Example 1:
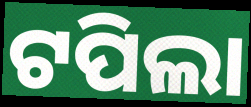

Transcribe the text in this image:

ଟପିଲା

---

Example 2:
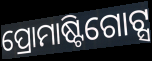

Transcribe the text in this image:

ପ୍ରୋମାଷ୍ଟିଗୋଟ୍ସ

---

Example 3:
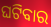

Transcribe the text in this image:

ଘଟିବାର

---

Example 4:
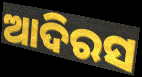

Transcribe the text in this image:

ଆଦିରସ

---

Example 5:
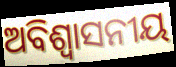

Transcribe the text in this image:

ଅବିଶ୍ୱାସନୀୟ